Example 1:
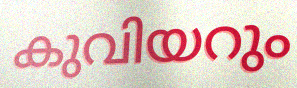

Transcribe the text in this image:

കുവിയറും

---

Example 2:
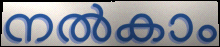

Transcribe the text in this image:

നൽകാം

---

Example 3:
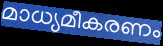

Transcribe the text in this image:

മാധ്യമീകരണം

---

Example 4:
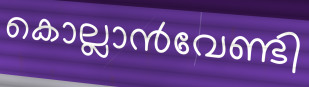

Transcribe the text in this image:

കൊല്ലാൻവേണ്ടി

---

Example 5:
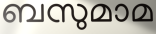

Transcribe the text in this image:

ബസുമാമ